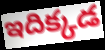
ఇదిక్కడ